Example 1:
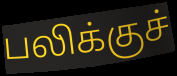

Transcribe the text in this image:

பலிக்குச்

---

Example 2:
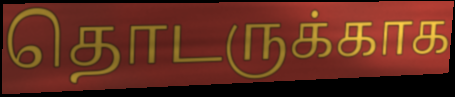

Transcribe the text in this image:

தொடருக்காக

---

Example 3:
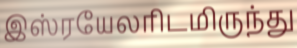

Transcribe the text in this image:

இஸ்ரயேலரிடமிருந்து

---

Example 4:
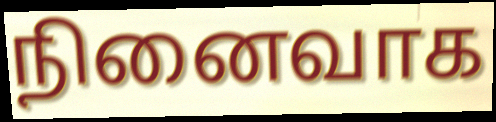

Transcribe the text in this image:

நினைவாக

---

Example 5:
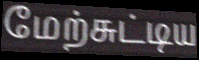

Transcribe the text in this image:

மேற்சுட்டிய